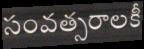
సంవత్సరాలకీ